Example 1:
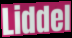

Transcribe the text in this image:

Liddel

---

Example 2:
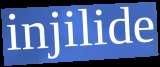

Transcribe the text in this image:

injilide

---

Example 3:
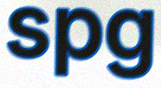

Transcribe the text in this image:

spg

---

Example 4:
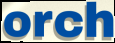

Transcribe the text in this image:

orch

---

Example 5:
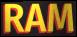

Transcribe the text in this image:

RAM